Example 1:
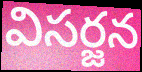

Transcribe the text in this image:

విసర్జన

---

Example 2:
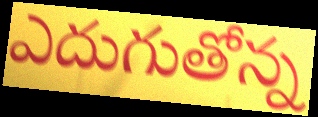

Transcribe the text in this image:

ఎదుగుతోన్న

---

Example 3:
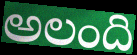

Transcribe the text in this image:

అలంది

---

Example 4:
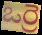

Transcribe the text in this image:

ఒర్రె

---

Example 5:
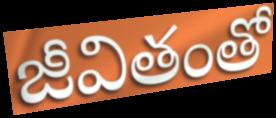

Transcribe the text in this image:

జీవితంతో